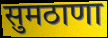
सुमठाणा